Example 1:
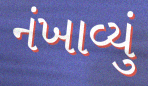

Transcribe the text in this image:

નંખાવ્યું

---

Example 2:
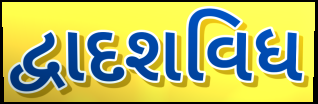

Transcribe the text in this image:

દ્વાદશવિધ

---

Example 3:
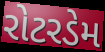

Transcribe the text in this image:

રોટરડેમ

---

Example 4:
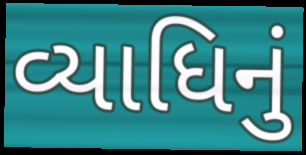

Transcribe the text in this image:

વ્યાધિનું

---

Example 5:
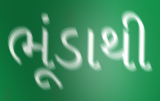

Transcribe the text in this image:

ભૂંડાથી